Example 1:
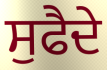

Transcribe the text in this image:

ਸੁਫੈਦੇ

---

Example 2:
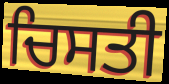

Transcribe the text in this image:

ਚਿਸਤੀ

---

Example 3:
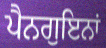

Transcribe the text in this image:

ਪੈਨਗੁਇਨਾਂ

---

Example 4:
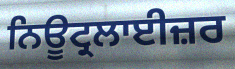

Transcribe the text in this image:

ਨਿਊਟ੍ਰਲਾਈਜ਼ਰ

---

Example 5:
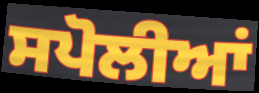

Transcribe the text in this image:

ਸਪੋਲੀਆਂ